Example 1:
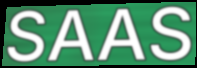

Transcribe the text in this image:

SAAS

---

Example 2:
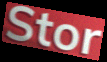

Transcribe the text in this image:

Stor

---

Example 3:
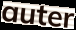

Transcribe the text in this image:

auter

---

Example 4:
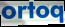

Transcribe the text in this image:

ortoq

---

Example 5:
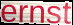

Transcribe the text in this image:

ernst